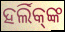
ହର୍ଲିକ୍‌ଙ୍କ